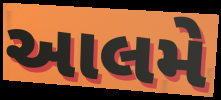
આલમે